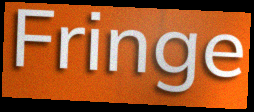
Fringe